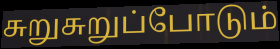
சுறுசுறுப்போடும்